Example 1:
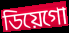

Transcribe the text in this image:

ডিয়েগো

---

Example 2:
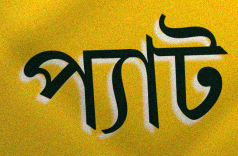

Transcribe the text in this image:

প্যাট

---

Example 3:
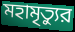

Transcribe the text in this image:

মহামৃত্যুর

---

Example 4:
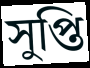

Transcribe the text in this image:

সুপ্তি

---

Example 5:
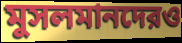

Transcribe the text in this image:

মুসলমানদেরও